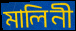
মালিনী